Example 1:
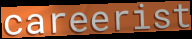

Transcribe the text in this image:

careerist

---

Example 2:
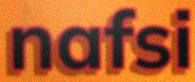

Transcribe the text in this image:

nafsi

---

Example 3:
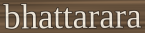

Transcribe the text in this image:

bhattarara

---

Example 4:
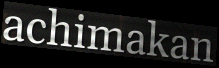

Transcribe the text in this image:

achimakan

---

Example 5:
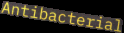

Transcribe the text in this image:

Antibacterial